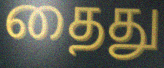
தைது